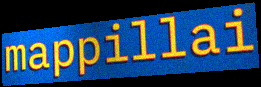
mappillai